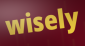
wisely